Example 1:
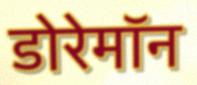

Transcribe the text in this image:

डोरेमॉन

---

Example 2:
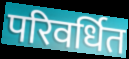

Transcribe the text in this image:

परिवर्धित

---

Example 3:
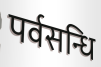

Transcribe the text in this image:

पर्वसन्धि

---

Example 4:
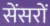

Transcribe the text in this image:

सेंसरों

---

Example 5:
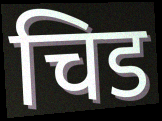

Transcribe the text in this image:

चिड